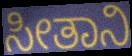
ಸೀತಾನಿ